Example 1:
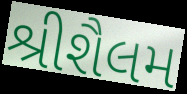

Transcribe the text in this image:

શ્રીશૈલમ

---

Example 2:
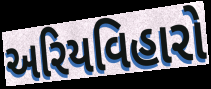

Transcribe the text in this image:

અરિયવિહારો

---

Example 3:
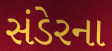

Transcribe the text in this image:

સંડેરના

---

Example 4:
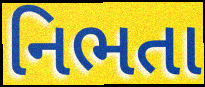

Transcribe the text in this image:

નિભતા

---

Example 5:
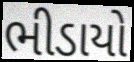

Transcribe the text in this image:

ભીડાયો